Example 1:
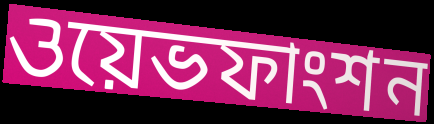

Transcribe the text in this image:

ওয়েভফাংশন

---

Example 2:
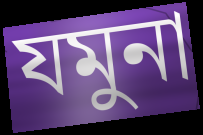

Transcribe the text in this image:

যমুনা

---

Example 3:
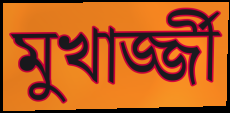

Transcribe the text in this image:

মুখার্জ্জী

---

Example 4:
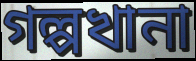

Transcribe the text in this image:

গল্পখানা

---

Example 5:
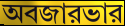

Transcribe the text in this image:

অবজারভার